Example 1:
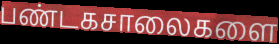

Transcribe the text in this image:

பண்டகசாலைகளை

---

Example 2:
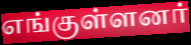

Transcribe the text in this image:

எங்குள்ளனர்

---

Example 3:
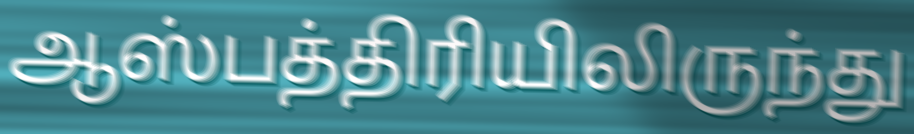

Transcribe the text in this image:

ஆஸ்பத்திரியிலிருந்து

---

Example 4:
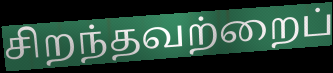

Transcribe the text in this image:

சிறந்தவற்றைப்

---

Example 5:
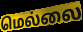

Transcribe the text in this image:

மெல்லை